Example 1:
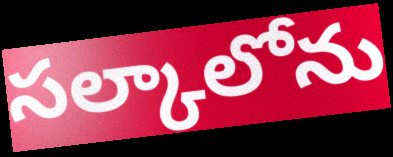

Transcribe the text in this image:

సల్కాలోను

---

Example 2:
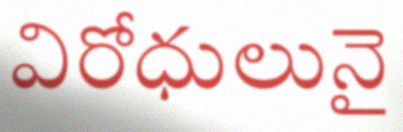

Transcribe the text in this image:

విరోధులునై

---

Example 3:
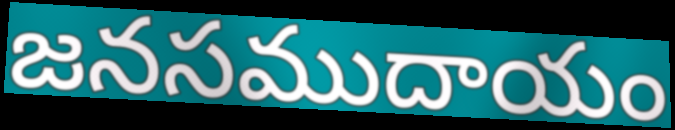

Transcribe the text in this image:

జనసముదాయం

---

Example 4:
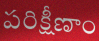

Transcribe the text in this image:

పరిక్షీణాం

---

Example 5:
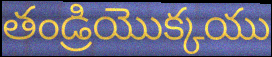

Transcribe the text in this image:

తండ్రియొక్కయు